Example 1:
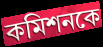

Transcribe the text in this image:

কমিশনকে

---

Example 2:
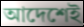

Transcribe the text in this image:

আদেশেই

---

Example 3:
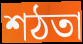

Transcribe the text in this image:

শঠতা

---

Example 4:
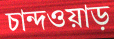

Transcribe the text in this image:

চান্দওয়াড়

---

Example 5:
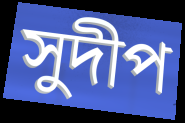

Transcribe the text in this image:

সুদীপ